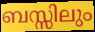
ബസ്സിലും